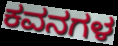
ಕವನಗಳ